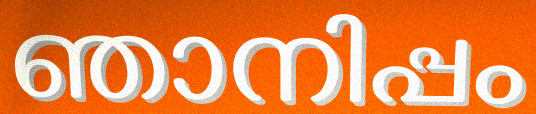
ഞാനിപ്പം